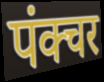
पंक्चर